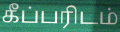
கீப்பரிடம்